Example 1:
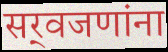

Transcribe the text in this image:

सर्वजणांना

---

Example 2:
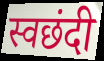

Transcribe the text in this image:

स्वछंदी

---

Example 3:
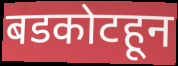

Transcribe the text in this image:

बडकोटहून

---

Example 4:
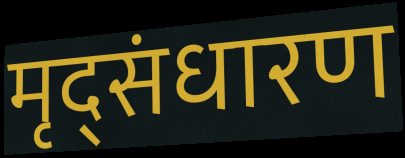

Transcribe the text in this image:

मृद्संधारण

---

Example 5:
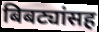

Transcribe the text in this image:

बिबट्यांसह